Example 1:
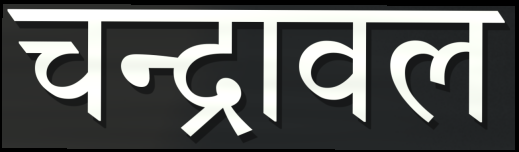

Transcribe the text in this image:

चन्द्रावल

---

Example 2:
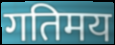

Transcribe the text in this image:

गतिमय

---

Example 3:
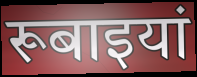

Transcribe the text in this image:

रूबाइयां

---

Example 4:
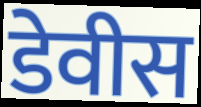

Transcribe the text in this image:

डेवीस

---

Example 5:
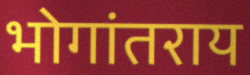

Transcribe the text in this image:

भोगांतराय